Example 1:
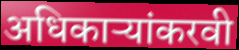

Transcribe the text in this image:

अधिकाऱ्यांकरवी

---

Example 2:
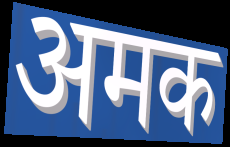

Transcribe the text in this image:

अमक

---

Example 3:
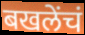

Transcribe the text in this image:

बखलेंचं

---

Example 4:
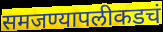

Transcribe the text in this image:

समजण्यापलीकडचं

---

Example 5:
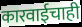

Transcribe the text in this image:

कारवाईचाही